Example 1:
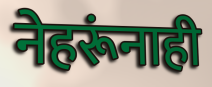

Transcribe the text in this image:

नेहरूंनाही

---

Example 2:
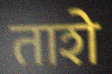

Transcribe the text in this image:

ताशे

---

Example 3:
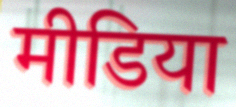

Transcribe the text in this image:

मीडिया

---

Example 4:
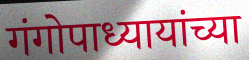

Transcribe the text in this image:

गंगोपाध्यायांच्या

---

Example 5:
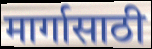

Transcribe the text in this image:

मार्गासाठी